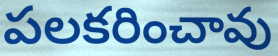
పలకరించావు